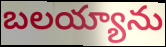
బలయ్యాను